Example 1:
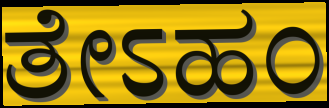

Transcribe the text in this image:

ತೇಽಹಂ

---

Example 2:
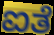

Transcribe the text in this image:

ಐತೆ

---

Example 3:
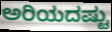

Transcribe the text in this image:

ಅರಿಯದಷ್ಟು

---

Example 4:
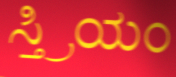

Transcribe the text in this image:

ಸ್ತ್ರಿಯಂ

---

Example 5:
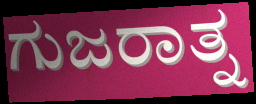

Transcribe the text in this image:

ಗುಜರಾತ್ನ